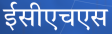
ईसीएचएस